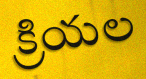
క్రియల